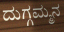
ದುಗ್ಗಮ್ಮನ